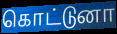
கொட்டுனா